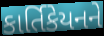
કાર્તિકેયનને